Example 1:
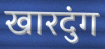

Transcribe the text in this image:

खारदुंग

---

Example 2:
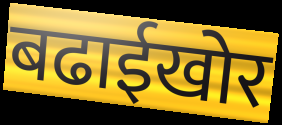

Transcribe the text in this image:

बढाईखोर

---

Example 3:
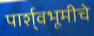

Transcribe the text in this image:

पार्श्वभूमीचे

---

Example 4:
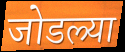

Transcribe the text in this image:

जोडल्या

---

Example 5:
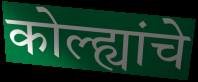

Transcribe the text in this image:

कोल्ह्यांचे